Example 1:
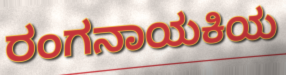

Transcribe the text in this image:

ರಂಗನಾಯಕಿಯ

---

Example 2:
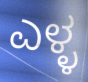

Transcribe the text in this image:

ಎಳ್ಳ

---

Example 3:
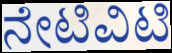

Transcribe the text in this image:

ನೇಟಿವಿಟಿ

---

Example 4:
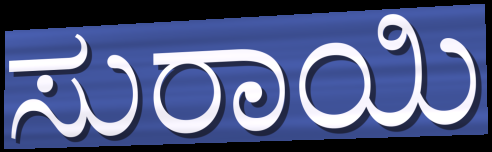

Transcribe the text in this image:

ಸುರಾಯಿ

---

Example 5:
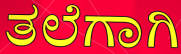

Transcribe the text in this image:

ತಲೆಗಾಗಿ